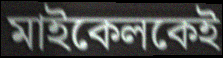
মাইকেলকেই